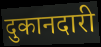
दुकानदारी